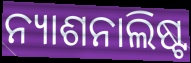
ନ୍ୟାଶନାଲିଷ୍ଟ